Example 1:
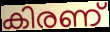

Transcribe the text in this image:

കിരണ്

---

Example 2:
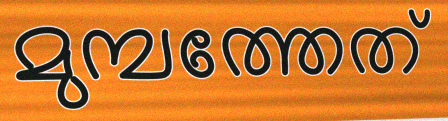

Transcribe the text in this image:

മുമ്പത്തേത്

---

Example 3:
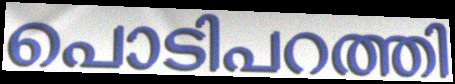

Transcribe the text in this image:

പൊടിപറത്തി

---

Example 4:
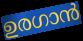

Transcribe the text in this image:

ഉരഗാൻ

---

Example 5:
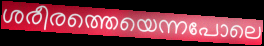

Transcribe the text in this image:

ശരീരത്തെയെന്നപോലെ